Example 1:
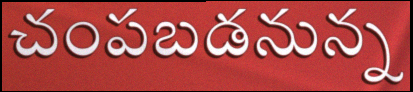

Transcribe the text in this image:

చంపబడనున్న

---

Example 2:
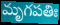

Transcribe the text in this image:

మృగపతిః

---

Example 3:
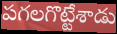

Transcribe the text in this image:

పగలగొట్టేశాడు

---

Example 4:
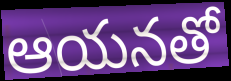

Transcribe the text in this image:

ఆయనతో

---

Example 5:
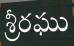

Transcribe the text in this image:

శ్రీరఘు